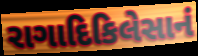
રાગાદિકિલેસાનં